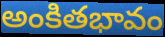
అంకితభావం